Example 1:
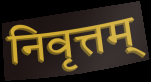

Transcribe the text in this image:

निवृत्तम्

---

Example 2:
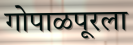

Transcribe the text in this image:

गोपाळपूरला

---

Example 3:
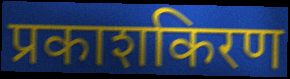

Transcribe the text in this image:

प्रकाशकिरण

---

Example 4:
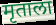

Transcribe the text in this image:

मृताला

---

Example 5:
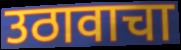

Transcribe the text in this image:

उठावाचा